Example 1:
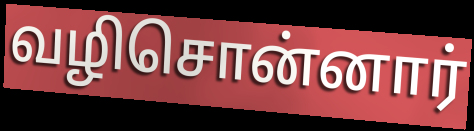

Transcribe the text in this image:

வழிசொன்னார்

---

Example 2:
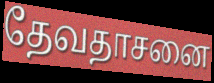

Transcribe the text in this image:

தேவதாசனை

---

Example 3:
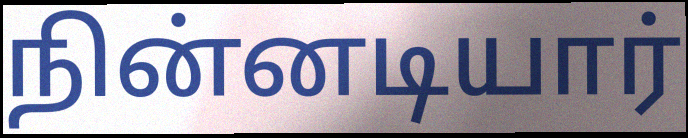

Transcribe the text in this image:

நின்னடியார்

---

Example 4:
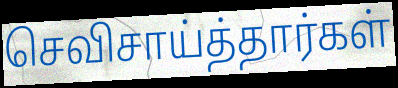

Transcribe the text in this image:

செவிசாய்த்தார்கள்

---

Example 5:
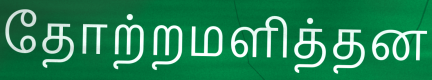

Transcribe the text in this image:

தோற்றமளித்தன